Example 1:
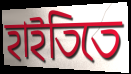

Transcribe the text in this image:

হাইতিতে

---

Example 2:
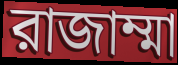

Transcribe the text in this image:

রাজাম্মা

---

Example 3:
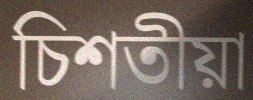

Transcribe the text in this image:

চিশতীয়া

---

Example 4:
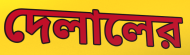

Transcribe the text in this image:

দেলালের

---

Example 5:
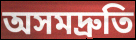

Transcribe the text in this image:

অসমদ্রুতি